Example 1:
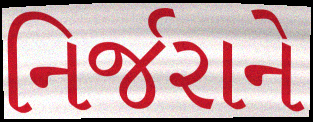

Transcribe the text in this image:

નિર્જરાને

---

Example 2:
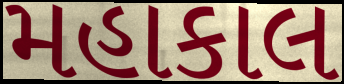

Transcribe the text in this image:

મહાકાલ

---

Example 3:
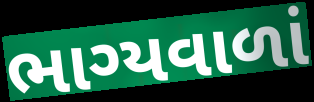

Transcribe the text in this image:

ભાગ્યવાળાં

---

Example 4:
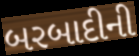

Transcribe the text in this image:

બરબાદીની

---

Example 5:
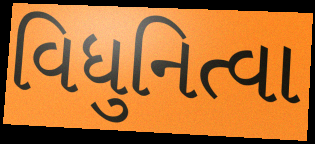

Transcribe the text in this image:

વિધુનિત્વા